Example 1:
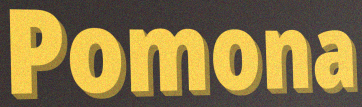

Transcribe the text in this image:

Pomona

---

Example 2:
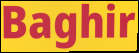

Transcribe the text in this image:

Baghir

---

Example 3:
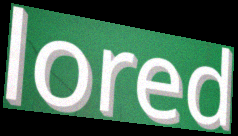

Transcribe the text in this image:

lored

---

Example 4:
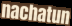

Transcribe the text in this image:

nachatun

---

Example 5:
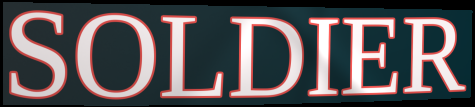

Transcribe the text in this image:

SOLDIER